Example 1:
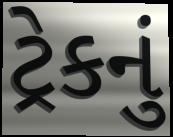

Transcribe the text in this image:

ટ્રેકનું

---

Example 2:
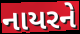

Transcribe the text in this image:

નાયરને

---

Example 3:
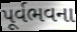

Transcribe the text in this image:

પૂર્વભવના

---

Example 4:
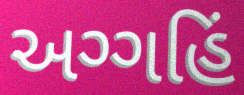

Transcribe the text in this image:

અગ્ગહિં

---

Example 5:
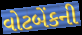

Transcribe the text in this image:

વોટબેંકની